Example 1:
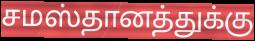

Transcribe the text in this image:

சமஸ்தானத்துக்கு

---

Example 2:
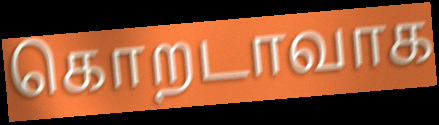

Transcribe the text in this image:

கொறடாவாக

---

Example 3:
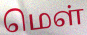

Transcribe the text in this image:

மெள்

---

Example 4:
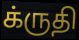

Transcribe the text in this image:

க்ருதி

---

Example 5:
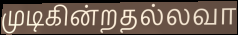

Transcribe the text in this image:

முடிகின்றதல்லவா